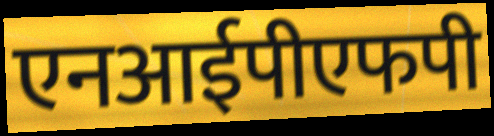
एनआईपीएफपी